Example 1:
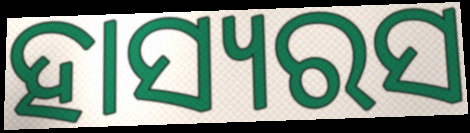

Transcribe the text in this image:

ହାସ୍ୟରସ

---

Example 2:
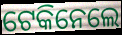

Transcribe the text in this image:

ଟେକିନେଲେ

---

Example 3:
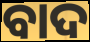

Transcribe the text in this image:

ବାଦ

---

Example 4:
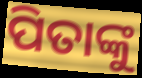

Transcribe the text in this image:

ପିତାଙ୍କୁ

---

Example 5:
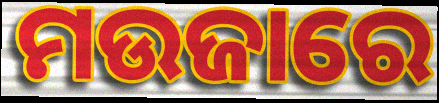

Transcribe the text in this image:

ମଉଜାରେ